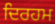
ਦਿਰਹਮ